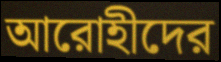
আরোহীদের